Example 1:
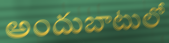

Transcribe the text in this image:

అందుబాటులో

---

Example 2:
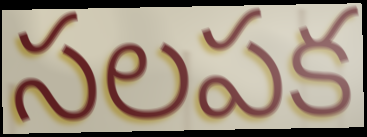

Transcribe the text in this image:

సలపక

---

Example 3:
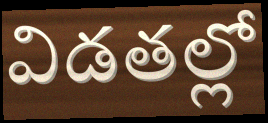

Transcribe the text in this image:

విడతల్లో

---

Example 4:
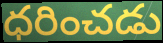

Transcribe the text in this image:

ధరించడు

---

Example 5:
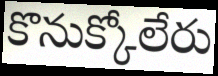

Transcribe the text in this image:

కొనుక్కోలేరు